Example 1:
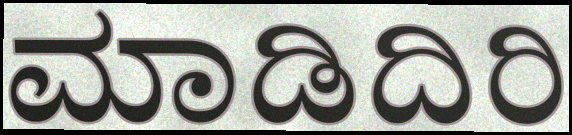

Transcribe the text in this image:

ಮಾಡಿದಿರಿ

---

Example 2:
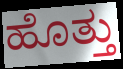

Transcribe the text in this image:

ಹೊತ್ತು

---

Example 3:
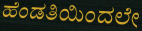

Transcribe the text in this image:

ಹೆಂಡತಿಯಿಂದಲೇ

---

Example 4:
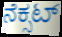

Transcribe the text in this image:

ನೆಕ್ಸಟ್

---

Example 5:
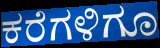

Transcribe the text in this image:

ಕರೆಗಳಿಗೂ